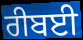
ਰੀਬਈ